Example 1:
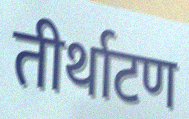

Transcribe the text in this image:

तीर्थाटण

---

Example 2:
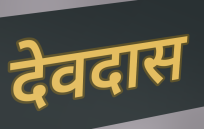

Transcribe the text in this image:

देवदास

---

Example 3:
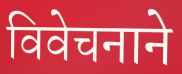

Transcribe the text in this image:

विवेचनाने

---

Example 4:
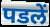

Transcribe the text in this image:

पडलें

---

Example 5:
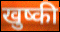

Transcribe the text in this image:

खुष्की